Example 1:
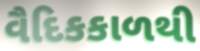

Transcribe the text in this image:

વૈદિકકાળથી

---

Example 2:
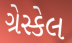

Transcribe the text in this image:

ગ્રેસ્કેલ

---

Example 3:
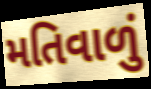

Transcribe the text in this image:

મતિવાળું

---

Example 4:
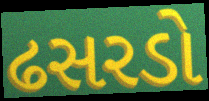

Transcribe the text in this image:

ઢસરડો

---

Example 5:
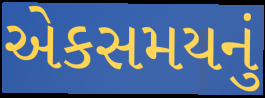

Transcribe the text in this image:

એકસમયનું